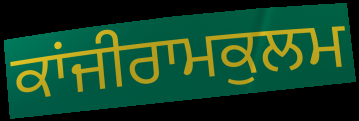
ਕਾਂਜੀਰਾਮਕੁਲਮ